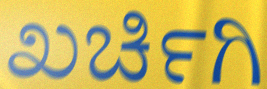
ಖರ್ಚಿಗಿ